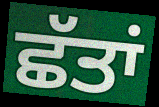
ਛੱਤਾਂ